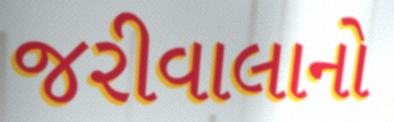
જરીવાલાનો